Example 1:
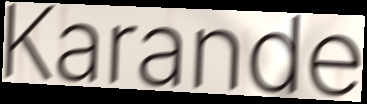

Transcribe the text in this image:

Karande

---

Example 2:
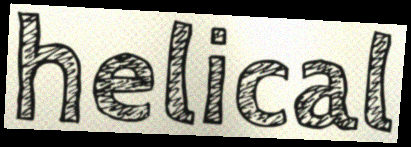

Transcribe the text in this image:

helical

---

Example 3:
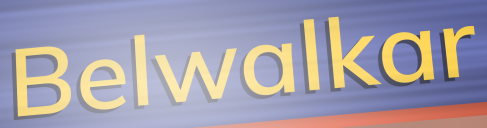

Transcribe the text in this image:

Belwalkar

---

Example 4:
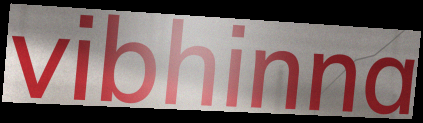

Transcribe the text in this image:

vibhinna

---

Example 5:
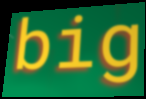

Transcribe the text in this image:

big